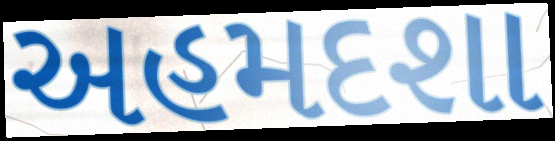
અહમદશા